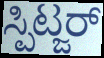
ಸ್ಪಿಟ್ಜರ್